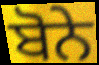
ਬੋਨੇ